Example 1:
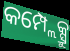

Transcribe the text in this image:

କମ୍ପ୍ଲେକ୍ସ୍ରୁ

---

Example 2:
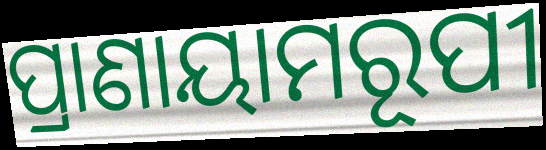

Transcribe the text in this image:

ପ୍ରାଣାୟାମରୂପୀ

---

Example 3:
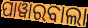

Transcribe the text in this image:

ପାୱାରବାଲା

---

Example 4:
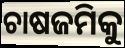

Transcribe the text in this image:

ଚାଷଜମିକୁ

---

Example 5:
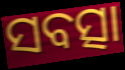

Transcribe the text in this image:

ସବତ୍ସା